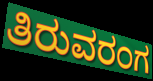
ತಿರುವರಂಗ